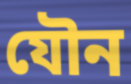
যৌন